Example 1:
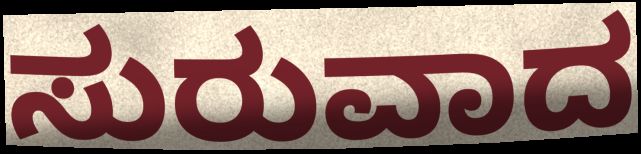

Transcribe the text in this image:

ಸುರುವಾದ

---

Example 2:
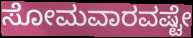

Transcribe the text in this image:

ಸೋಮವಾರವಷ್ಟೇ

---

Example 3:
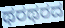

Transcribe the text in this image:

ಥರಥರದ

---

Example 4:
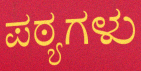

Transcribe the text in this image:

ಪಠ್ಯಗಳು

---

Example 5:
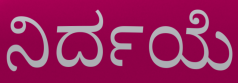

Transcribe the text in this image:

ನಿರ್ದಯೆ